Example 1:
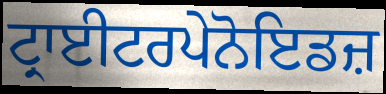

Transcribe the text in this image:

ਟ੍ਰਾਈਟਰਪੇਨੋਇਡਜ਼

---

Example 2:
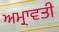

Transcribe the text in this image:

ਅਮ੍ਰਾਵਤੀ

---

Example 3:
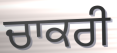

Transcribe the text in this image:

ਚਾਕਰੀ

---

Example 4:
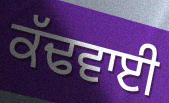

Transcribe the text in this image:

ਕੱਢਵਾਈ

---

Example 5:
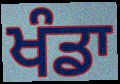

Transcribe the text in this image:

ਖੰਡਾ